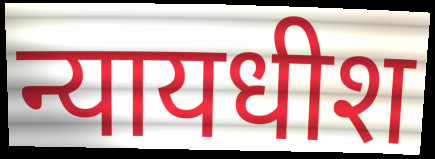
न्यायधीश